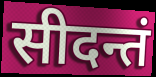
सीदन्तं